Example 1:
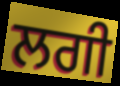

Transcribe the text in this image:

ਲਗੀ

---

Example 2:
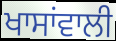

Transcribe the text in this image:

ਖਾਸਾਂਵਾਲੀ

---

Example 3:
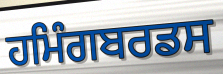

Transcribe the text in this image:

ਹਮਿੰਗਬਰਡਸ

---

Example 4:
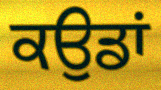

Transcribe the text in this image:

ਕਉਡਾਂ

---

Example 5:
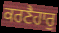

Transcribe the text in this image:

ਕਰਣੈਹਾਰੁ